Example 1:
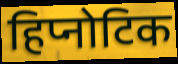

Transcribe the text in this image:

हिप्नोटिक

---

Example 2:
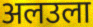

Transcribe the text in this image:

अलउला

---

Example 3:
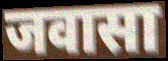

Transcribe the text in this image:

जवासा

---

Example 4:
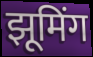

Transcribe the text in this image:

झूमिंग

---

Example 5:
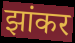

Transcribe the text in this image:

झांकर